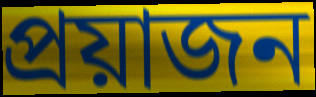
প্রয়াজন